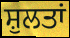
ਸ਼ੁਲਤਾਂ